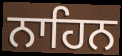
ਨਾਹਿਨ